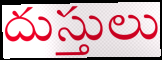
దుస్తులు